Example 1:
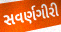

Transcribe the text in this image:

સવર્ણગીરી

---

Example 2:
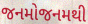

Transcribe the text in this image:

જનમોજનમથી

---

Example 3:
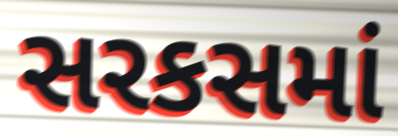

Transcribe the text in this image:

સરકસમાં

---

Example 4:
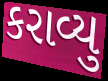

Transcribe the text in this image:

કરાવ્યુ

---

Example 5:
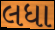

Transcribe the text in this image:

લધા